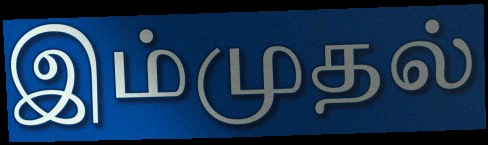
இம்முதல்